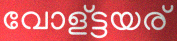
വോള്ട്ടയര്